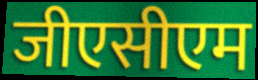
जीएसीएम